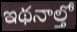
ఇథనాల్తో